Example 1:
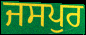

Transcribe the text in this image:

ਜਸਪੁਰ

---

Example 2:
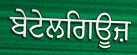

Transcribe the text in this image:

ਬੇਟੇਲਗਿਊਜ਼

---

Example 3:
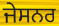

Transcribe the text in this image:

ਜੇਸਨਰ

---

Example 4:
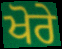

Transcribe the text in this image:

ਖੋਰੇ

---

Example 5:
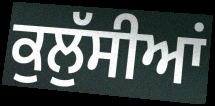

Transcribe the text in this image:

ਕੁਲੁੱਸੀਆਂ